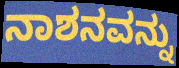
ನಾಶನವನ್ನು